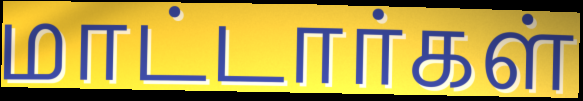
மாட்டார்கள்